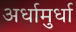
अर्धामुर्धा